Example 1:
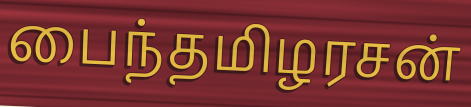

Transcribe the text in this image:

பைந்தமிழரசன்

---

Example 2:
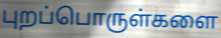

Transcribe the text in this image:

புறப்பொருள்களை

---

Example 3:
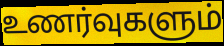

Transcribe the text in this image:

உணர்வுகளும்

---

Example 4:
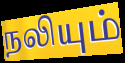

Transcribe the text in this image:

நலியும்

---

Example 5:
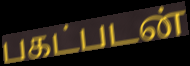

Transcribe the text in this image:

பகட்படன்